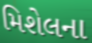
મિશેલના